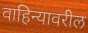
वाहिन्यावरील